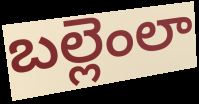
బల్లెంలా